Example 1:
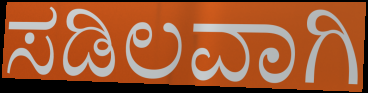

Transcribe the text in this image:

ಸಡಿಲವಾಗಿ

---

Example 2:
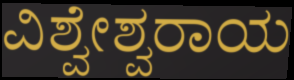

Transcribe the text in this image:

ವಿಶ್ವೇಶ್ವರಾಯ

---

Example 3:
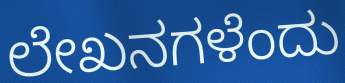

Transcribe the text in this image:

ಲೇಖನಗಳೆಂದು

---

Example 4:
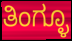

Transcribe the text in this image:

ತಿಂಗ್ಳೂ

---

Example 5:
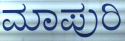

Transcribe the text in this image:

ಮಾಪುರಿ